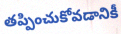
తప్పించుకోవడానికీ